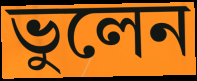
ভুলেন